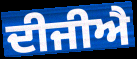
ਦੀਜੀਐ